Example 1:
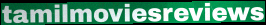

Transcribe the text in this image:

tamilmoviesreviews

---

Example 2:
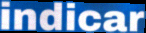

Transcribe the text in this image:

indicar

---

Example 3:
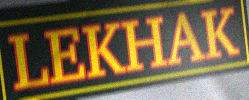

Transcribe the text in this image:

LEKHAK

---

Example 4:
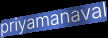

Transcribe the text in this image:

priyamanaval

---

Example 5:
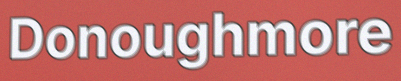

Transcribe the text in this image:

Donoughmore